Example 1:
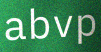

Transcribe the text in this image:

abvp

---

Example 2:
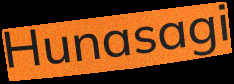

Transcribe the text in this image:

Hunasagi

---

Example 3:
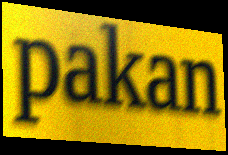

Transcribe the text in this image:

pakan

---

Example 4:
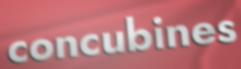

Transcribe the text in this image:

concubines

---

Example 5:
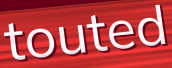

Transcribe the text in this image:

touted